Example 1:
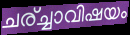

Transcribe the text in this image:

ചര്ച്ചാവിഷയം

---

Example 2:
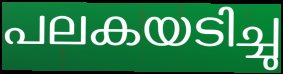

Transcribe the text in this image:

പലകയടിച്ചു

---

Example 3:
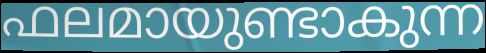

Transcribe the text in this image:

ഫലമായുണ്ടാകുന്ന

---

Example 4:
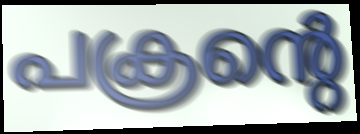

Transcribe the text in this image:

പക്രന്റെ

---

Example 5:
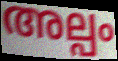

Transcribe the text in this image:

അല്പം